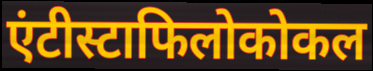
एंटीस्टाफिलोकोकल